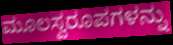
ಮೂಲಸ್ವರೂಪಗಳನ್ನು